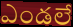
ఎండలే